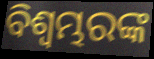
ବିଶ୍ୱମ୍ଭରଙ୍କ